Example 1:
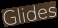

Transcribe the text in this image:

Glides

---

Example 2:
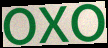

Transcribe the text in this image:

oxo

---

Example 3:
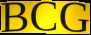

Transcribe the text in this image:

BCG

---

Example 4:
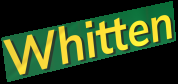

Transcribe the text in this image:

Whitten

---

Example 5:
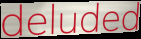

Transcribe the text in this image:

deluded